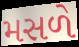
મસળે